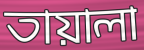
তায়ালা